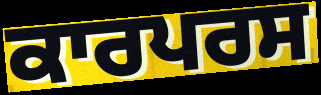
ਕਾਰਪਰਸ